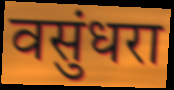
वसुंधरा